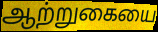
ஆற்றுகையை